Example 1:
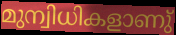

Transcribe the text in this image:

മുന്വിധികളാണു്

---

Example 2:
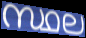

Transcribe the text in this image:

സ്ഥല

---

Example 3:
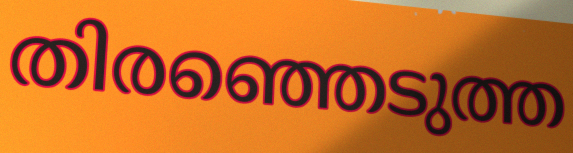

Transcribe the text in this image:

തിരഞ്ഞെടുത്ത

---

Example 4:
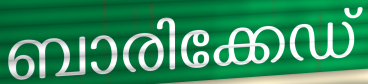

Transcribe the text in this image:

ബാരിക്കേഡ്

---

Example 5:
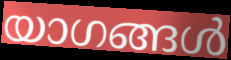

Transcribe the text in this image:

യാഗങ്ങൾ